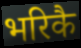
भरिकै